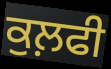
ਕੁਲ਼ਫੀ